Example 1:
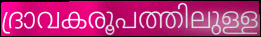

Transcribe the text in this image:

ദ്രാവകരൂപത്തിലുള്ള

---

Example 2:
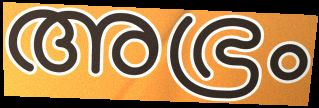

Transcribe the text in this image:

അഭ്രം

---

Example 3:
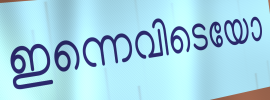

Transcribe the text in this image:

ഇന്നെവിടെയോ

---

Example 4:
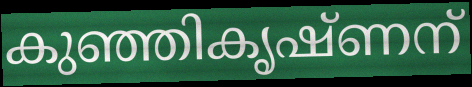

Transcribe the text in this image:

കുഞ്ഞികൃഷ്ണന്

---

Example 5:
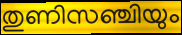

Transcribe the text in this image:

തുണിസഞ്ചിയും